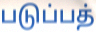
படுப்பத்